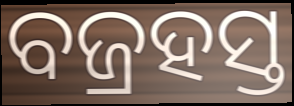
ବଜ୍ରହସ୍ତ